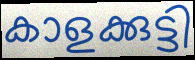
കാളക്കുട്ടി